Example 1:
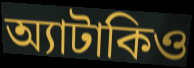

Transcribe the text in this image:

অ্যাটাকিও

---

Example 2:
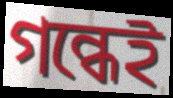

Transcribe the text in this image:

গন্ধেই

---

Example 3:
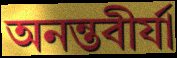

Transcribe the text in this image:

অনন্তবীর্যা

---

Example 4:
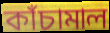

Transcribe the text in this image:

কাঁচামাল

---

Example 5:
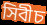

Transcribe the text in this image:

সিবীচ